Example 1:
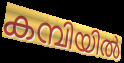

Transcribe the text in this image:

കമ്പിയിൽ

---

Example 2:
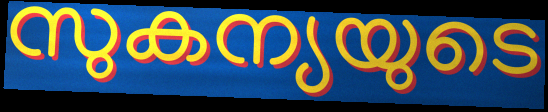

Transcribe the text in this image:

സുകന്യയുടെ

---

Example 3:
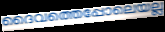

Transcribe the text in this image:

ദൈവത്തെപ്പോലെയല്ല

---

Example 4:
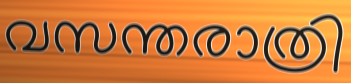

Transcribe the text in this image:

വസന്തരാത്രി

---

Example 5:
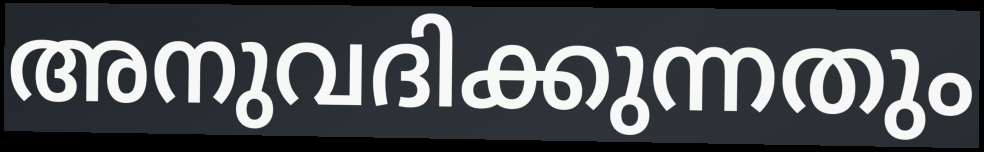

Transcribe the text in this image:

അനുവദിക്കുന്നതും